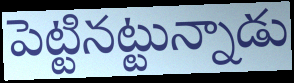
పెట్టినట్టున్నాడు